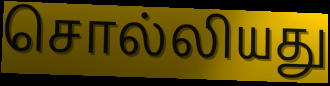
சொல்லியது